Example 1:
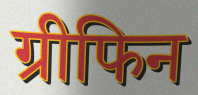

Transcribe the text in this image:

ग्रीफिन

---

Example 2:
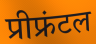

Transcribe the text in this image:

प्रीफ्रंटल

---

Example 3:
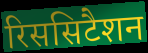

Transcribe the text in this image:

रिससिटैशन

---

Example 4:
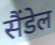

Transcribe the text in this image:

सैंडेल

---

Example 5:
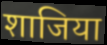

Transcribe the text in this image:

शाजिया